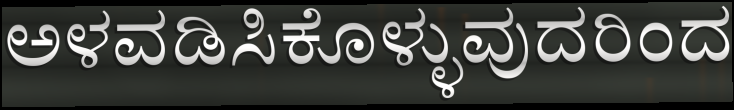
ಅಳವಡಿಸಿಕೊಳ್ಳುವುದರಿಂದ